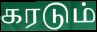
கரடும்